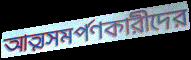
আত্মসমর্পণকারীদের